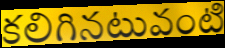
కలిగినటువంటి